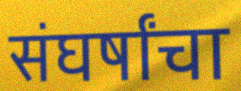
संघर्षांचा